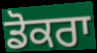
ਡੋਕਰਾ